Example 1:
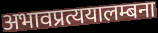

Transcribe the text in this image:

अभावप्रत्ययालम्बना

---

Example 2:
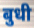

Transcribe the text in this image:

बुधी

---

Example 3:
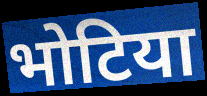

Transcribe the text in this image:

भोटिया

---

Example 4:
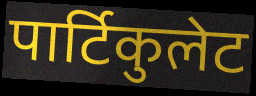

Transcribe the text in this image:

पार्टिकुलेट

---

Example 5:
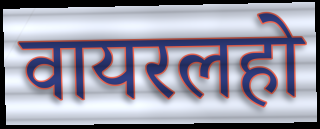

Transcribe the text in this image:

वायरलहो